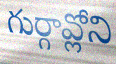
గుర్గావ్లోని